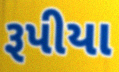
રૂપીયા